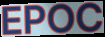
EPOC